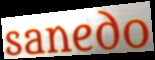
sanedo